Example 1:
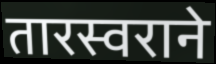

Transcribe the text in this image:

तारस्वराने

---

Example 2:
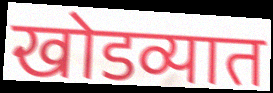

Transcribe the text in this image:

खोडव्यात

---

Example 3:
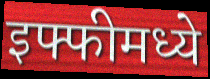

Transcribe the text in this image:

इफ्फीमध्ये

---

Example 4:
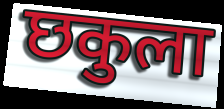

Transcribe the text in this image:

छकुला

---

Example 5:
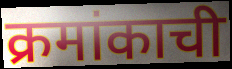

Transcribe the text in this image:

क्रमांकाची